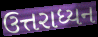
ઉત્તરાધ્યન